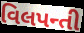
વિલપન્તી